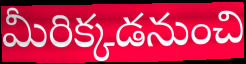
మీరిక్కడనుంచి